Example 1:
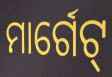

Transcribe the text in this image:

ମାର୍ଗେଟ୍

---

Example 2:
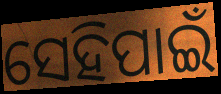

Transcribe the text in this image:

ସେହିପାଇଁ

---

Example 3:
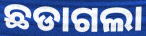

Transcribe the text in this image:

ଛଡାଗଲା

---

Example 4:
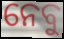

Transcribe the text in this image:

ନେବୁ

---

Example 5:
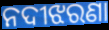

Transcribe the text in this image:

ନଦୀଝରଣା